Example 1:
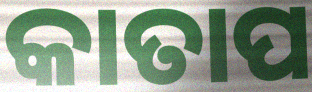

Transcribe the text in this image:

କାତାପ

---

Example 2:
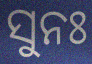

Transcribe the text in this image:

ସୁନଃ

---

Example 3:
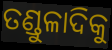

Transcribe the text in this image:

ତଣ୍ଡୁଳାଦିକୁ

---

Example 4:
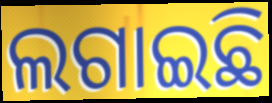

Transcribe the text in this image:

ଲଗାଇଛି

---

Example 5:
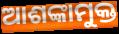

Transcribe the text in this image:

ଆଶଙ୍କାମୁକ୍ତ